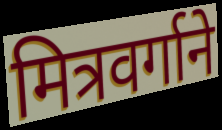
मित्रवर्गाने